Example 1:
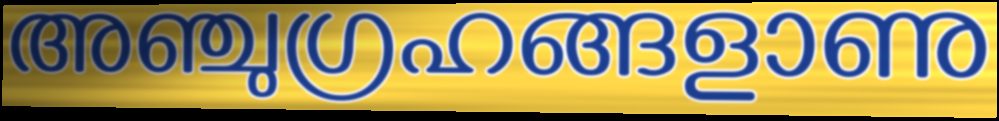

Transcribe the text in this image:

അഞ്ചുഗ്രഹങ്ങളാണു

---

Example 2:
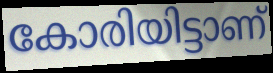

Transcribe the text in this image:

കോരിയിട്ടാണ്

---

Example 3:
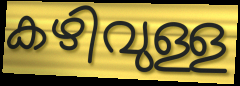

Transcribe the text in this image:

കഴിവുള്ള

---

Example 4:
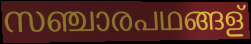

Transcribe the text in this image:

സഞ്ചാരപഥങ്ങള്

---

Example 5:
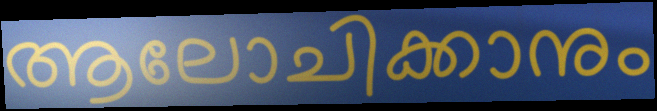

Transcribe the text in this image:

ആലോചിക്കാനും